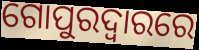
ଗୋପୁରଦ୍ବାରରେ